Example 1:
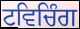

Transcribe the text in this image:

ਟਵਿਚਿੰਗ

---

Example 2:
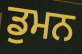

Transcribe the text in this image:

ਡੁਮਨ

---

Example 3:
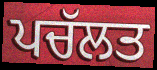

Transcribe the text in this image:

ਪਚੱਲਤ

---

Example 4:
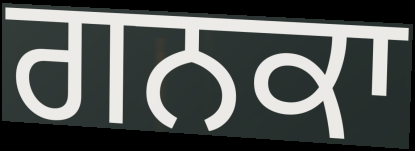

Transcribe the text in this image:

ਗਨਕਾ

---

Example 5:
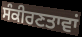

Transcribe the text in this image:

ਸੰਕੀਰਣਤਾਵਾਂ